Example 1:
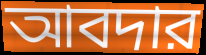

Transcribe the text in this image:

আবদার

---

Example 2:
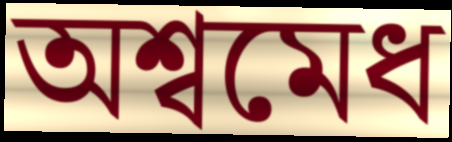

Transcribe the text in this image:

অশ্বমেধ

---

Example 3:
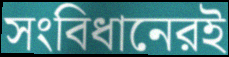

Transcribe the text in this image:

সংবিধানেরই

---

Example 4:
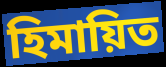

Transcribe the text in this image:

হিমায়িত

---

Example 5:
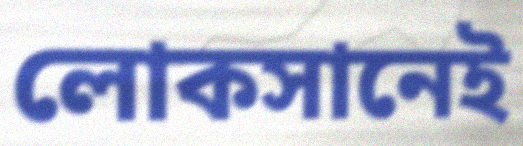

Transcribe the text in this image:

লোকসানেই